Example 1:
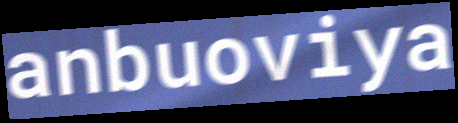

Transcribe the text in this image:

anbuoviya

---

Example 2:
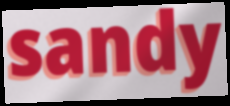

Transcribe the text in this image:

sandy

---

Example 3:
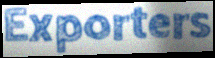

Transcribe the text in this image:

Exporters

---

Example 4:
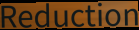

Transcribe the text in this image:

Reduction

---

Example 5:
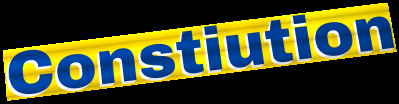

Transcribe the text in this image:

Constiution